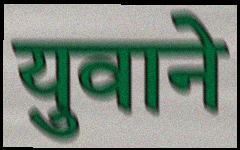
युवाने